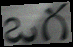
ఒగ